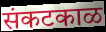
संकटकाळ